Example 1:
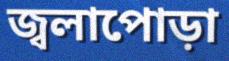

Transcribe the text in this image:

জ্বলাপোড়া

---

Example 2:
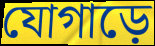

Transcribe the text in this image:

যোগাড়ে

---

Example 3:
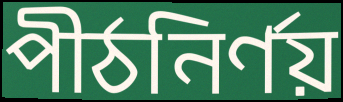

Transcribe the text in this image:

পীঠনির্ণয়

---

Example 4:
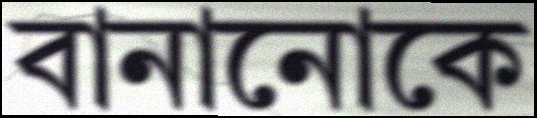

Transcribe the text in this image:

বানানোকে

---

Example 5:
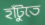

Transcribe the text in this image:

হাঁটুতে